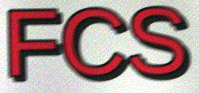
FCS